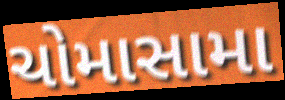
ચોમાસામા